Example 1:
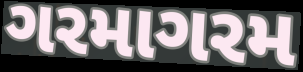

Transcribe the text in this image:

ગરમાગરમ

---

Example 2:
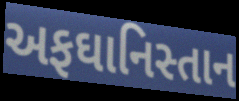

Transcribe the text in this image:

અફઘાનિસ્તાન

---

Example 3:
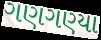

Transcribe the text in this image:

ગણગણ્યા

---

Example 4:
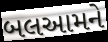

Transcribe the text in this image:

બલઆમને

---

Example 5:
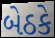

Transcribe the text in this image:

બેઠકે